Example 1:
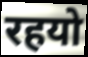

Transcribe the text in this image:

रहयो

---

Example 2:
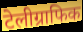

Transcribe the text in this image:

टेलीग्राफिक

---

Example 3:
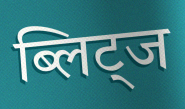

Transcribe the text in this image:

ब्लिट्ज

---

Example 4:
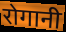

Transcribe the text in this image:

रोगानी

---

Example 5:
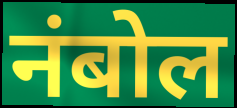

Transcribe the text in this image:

नंबोल